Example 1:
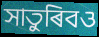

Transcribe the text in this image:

সাতুৰিবও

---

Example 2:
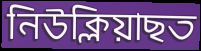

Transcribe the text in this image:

নিউক্লিয়াছত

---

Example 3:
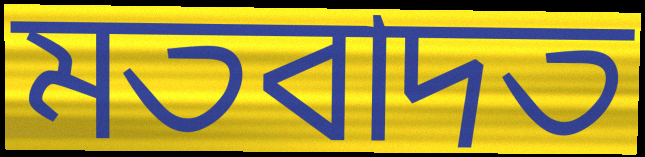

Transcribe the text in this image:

মতবাদত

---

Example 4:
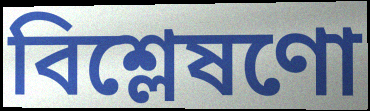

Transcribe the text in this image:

বিশ্লেষণো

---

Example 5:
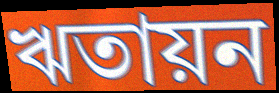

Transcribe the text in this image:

ঋতায়ন